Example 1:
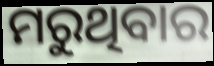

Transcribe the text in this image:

ମରୁଥିବାର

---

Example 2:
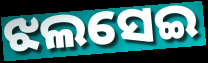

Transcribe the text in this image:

ଝଲସେଇ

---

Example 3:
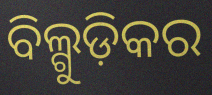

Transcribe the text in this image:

ବିଲ୍ଗୁଡ଼ିକର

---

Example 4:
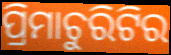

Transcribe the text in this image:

ପ୍ରିମାଚୁରିଟିର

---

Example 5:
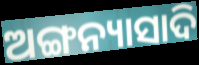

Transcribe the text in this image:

ଅଙ୍ଗନ୍ୟାସାଦି